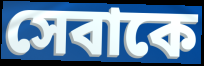
সেবাকে